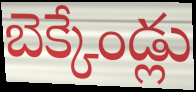
బెక్కేండ్లు